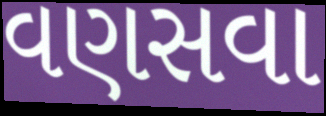
વણસવા